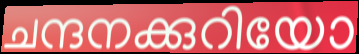
ചന്ദനക്കുറിയോ